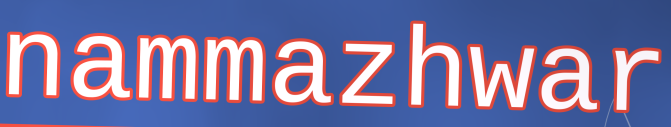
nammazhwar